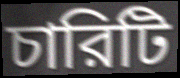
চারিটি